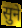
सुने